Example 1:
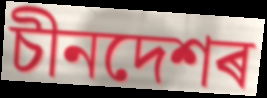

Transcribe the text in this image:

চীনদেশৰ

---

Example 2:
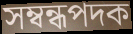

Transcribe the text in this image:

সম্বন্ধপদক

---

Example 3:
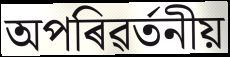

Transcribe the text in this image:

অপৰিৱৰ্তনীয়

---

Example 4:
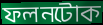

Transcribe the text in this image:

ফলনটোক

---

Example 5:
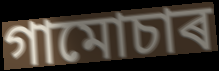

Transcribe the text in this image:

গামোচাৰ